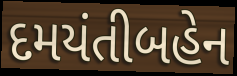
દમયંતીબહેન